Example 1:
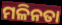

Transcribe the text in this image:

ମଳିନତା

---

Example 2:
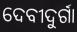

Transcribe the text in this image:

ଦେବୀଦୁର୍ଗା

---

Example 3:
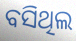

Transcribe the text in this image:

ବସିଥିଲ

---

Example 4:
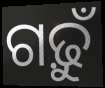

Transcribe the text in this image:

ଗଢ଼ୁଁ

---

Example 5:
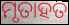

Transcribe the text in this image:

ମୃତାହତ